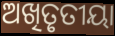
ଅଖିତୃତୀୟା